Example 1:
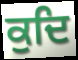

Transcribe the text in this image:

ਕੁਦਿ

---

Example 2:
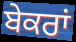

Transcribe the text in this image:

ਬੇਕਰਾਂ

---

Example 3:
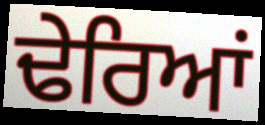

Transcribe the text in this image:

ਢੇਰਿਆਂ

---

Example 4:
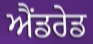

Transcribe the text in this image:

ਐਂਡਰੇਡ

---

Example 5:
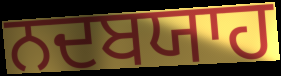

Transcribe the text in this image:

ਨਦਬਯਾਹ